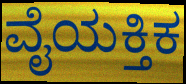
ವೈಯಕ್ತಿಕ